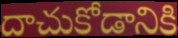
దాచుకోడానికి